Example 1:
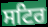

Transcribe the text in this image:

ਸਟਿਰ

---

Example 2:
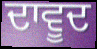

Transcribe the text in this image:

ਦਾਵੂਦ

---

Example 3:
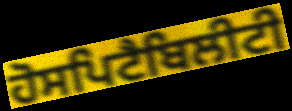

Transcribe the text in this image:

ਹੋਸਪਿਟੈਬਿਲੀਟੀ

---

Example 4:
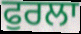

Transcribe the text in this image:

ਫੁਰਲਾ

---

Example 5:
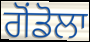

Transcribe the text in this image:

ਗੋਂਡੋਲਾ